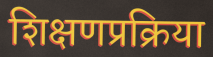
शिक्षणप्रक्रिया